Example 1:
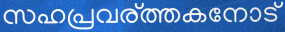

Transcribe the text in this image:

സഹപ്രവര്ത്തകനോട്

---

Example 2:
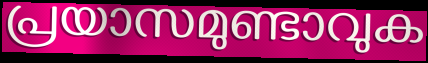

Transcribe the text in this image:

പ്രയാസമുണ്ടാവുക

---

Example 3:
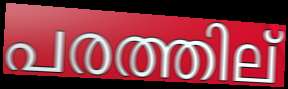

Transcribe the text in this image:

പരത്തില്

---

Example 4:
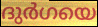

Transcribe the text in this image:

ദുർഗയെ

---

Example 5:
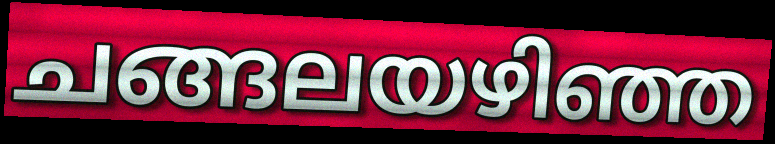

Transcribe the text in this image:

ചങ്ങലയഴിഞ്ഞ